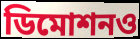
ডিমোশনও